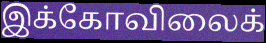
இக்கோவிலைக்